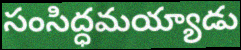
సంసిద్ధమయ్యాడు